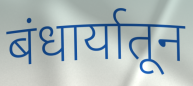
बंधार्यातून